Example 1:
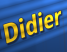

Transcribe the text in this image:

Didier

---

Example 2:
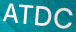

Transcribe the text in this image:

ATDC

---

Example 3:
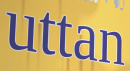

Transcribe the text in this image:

uttan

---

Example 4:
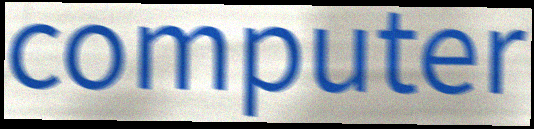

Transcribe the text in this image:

computer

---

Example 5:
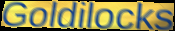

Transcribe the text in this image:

Goldilocks